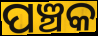
ପଞ୍ଚକ